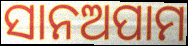
ସାନଅପାମ